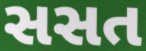
સસત